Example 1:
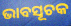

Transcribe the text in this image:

ଭାବସୂଚକ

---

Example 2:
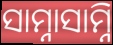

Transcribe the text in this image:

ସାମ୍ନାସାମ୍ନି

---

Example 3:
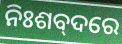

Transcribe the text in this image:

ନିଃଶବ୍‌ଦରେ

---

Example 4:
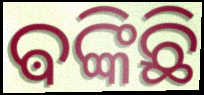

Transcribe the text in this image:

ଵଙ୍କିଛି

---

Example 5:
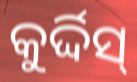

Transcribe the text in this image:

କୁର୍ଦ୍ଦିସ୍